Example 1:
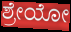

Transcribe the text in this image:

ಶ್ರೇಯೋ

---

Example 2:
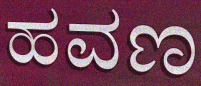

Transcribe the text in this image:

ಹವಣ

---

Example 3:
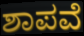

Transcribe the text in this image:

ಶಾಪವೆ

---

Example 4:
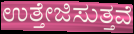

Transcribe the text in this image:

ಉತ್ತೇಜಿಸುತ್ತವೆ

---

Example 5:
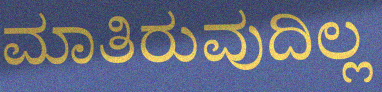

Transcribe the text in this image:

ಮಾತಿರುವುದಿಲ್ಲ